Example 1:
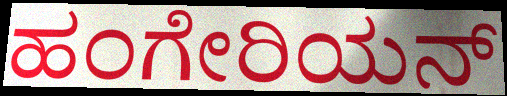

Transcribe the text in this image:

ಹಂಗೇರಿಯನ್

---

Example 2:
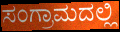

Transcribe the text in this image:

ಸಂಗ್ರಾಮದಲ್ಲಿ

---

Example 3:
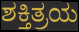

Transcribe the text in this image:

ಶಕ್ತಿತ್ರಯ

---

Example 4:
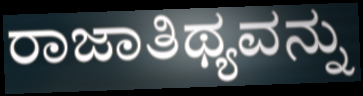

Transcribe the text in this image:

ರಾಜಾತಿಥ್ಯವನ್ನು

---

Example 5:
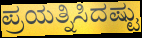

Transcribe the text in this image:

ಪ್ರಯತ್ನಿಸಿದಷ್ಟು